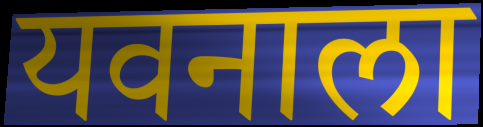
यवनाला